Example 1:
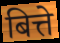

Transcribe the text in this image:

बित्ते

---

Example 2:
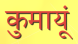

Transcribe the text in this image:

कुमायूं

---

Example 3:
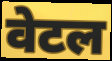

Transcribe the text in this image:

वेटल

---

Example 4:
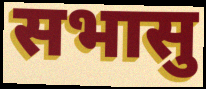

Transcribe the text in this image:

सभासु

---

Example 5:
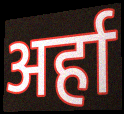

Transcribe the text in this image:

अर्हा